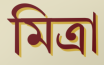
মিত্রা